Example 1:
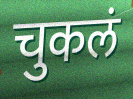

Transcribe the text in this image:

चुकलं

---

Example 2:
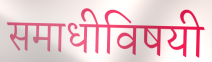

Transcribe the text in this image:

समाधीविषयी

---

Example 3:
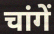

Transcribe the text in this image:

चांगें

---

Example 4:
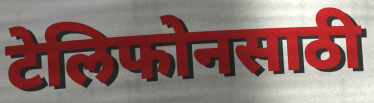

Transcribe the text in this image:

टेलिफोनसाठी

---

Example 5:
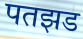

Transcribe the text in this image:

पतझड